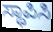
ಸ್ಥಾಪಿಸಿ